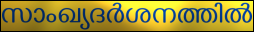
സാംഖ്യദർശനത്തിൽ